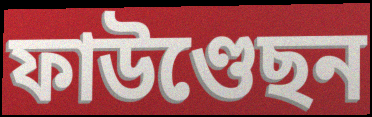
ফাউণ্ডেছন